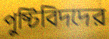
পুষ্টিবিদদের